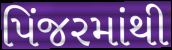
પિંજરમાંથી